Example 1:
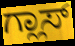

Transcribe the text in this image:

ಗ್ಲಾಸ್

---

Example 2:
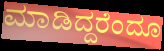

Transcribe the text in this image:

ಮಾಡಿದ್ದರೆಂದೂ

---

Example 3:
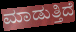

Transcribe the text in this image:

ಮಾಡುತ್ತಿದೆ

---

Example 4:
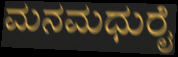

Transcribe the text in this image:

ಮನಮಧುರೈ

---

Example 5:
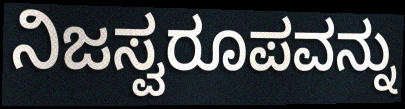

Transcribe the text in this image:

ನಿಜಸ್ವರೂಪವನ್ನು